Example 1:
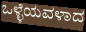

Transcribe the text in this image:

ಒಳ್ಳೆಯವಳಾದ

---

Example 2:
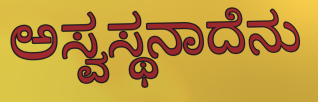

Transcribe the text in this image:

ಅಸ್ವಸ್ಥನಾದೆನು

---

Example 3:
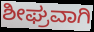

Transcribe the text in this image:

ಶೀಘ್ರವಾಗಿ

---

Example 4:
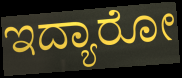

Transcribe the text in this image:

ಇದ್ಯಾರೋ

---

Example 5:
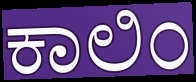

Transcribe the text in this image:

ಕಾಲಿಂ